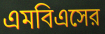
এমবিএসের